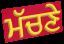
ਮੱਚਣੇ